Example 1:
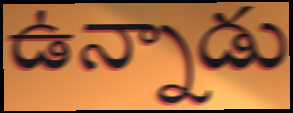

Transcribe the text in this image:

ఉన్నాడు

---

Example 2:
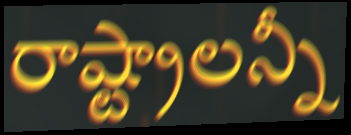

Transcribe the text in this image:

రాష్ట్రాలన్నీ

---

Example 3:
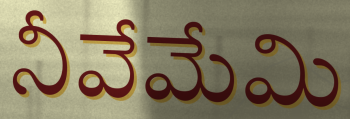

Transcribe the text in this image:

నీవేమేమి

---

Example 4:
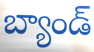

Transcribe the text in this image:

బ్యాండ్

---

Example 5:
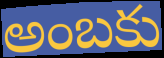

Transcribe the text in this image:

అంబకు